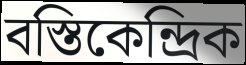
বস্তিকেন্দ্রিক